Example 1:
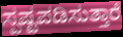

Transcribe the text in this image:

ಸ್ಪಷ್ಟಪಡಿಸುತ್ತಾರೆ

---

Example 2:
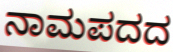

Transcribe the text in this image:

ನಾಮಪದದ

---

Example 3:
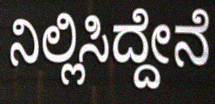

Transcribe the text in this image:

ನಿಲ್ಲಿಸಿದ್ದೇನೆ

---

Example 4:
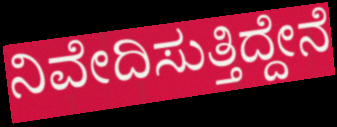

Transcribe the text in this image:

ನಿವೇದಿಸುತ್ತಿದ್ದೇನೆ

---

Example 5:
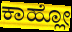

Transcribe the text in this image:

ಕಾಹ್ಲೋ